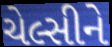
ચેલ્સીને